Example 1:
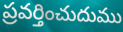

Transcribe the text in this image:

ప్రవర్తించుదుము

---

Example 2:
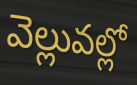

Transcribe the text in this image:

వెల్లువల్లో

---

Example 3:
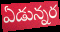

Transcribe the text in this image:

ఏడున్నర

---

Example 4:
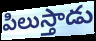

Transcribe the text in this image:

పిలుస్తాడు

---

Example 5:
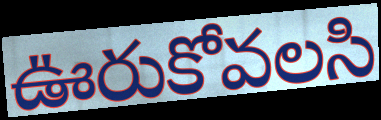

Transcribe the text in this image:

ఊరుకోవలసి